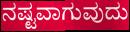
ನಷ್ಟವಾಗುವುದು